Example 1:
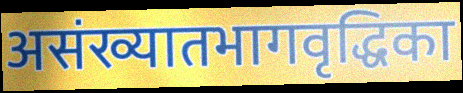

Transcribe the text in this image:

असंख्यातभागवृद्धिका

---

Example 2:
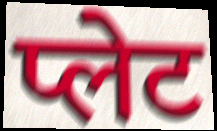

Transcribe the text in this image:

प्‍लेट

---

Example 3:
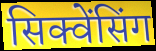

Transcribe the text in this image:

सिक्‍वेंसिंग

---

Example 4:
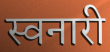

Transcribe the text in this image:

स्वनारी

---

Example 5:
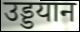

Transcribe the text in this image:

उड्डयान